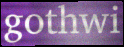
gothwi